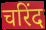
चरिंद